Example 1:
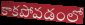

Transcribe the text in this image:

కాకపోవడంలో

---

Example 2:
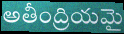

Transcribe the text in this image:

అతీంద్రియమై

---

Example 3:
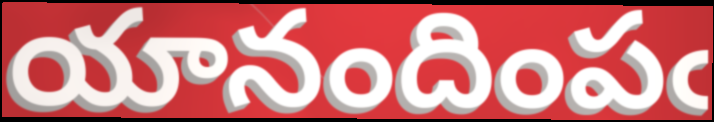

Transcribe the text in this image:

యానందింపఁ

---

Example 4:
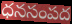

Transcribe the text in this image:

ధనసంపద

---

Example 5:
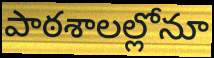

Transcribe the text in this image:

పాఠశాలల్లోనూ